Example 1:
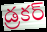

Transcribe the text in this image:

డ్రకర్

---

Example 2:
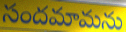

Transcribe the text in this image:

సందమామను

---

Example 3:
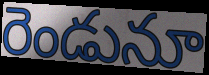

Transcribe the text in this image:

రెండునూ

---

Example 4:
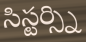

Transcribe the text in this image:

సిస్టర్స్ని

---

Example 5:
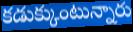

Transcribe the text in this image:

కడుక్కుంటున్నారు